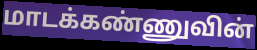
மாடக்கண்ணுவின்